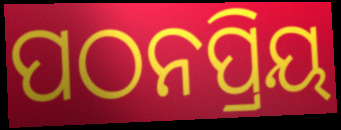
ପଠନପ୍ରିୟ